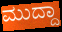
ಮುದ್ದಾ